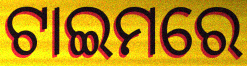
ଟାଇମରେ